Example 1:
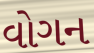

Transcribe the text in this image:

વોગન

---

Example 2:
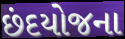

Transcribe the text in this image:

છંદયોજના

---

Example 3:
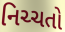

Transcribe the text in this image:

નિચ્ચતો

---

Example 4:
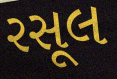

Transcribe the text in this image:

રસૂલ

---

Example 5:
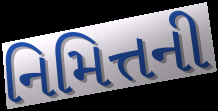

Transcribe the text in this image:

નિમિત્તની